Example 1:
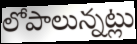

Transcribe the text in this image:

లోపాలున్నట్లు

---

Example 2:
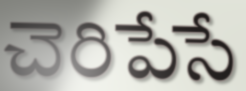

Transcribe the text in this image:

చెరిపేసే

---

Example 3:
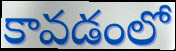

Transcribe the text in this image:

కావడంలో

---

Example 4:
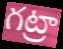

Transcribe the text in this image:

గట్రా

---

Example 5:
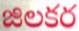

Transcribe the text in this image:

జిలకర